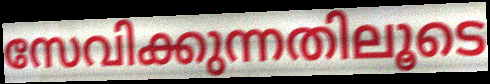
സേവിക്കുന്നതിലൂടെ